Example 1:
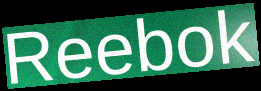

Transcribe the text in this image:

Reebok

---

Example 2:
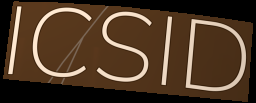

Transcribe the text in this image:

ICSID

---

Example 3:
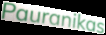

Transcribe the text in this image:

Pauranikas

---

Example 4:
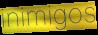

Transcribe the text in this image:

inimigos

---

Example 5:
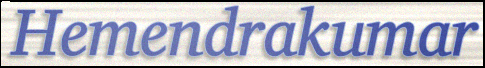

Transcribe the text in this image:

Hemendrakumar